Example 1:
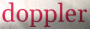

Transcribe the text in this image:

doppler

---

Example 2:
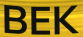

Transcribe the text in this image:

BEK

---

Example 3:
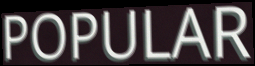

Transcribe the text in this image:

POPULAR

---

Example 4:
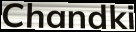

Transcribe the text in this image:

Chandki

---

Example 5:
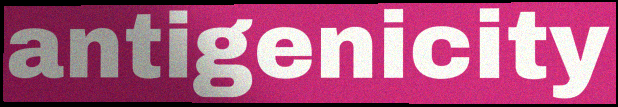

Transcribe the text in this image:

antigenicity